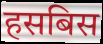
हसबिस